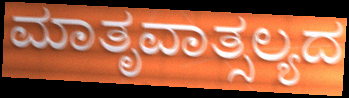
ಮಾತೃವಾತ್ಸಲ್ಯದ